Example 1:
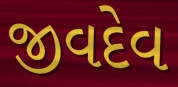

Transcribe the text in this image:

જીવદેવ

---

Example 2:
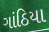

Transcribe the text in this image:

ગાંઠિયા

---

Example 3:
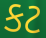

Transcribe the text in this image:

કટ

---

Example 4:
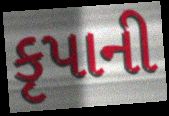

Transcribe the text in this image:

કૃપાની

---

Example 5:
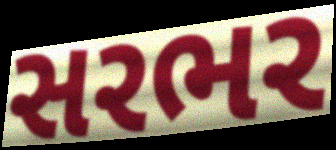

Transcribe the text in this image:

સરભર